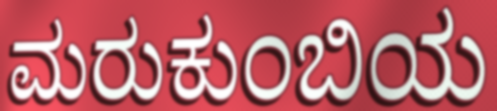
ಮರುಕುಂಬಿಯ